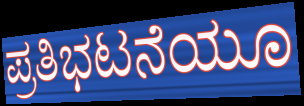
ಪ್ರತಿಭಟನೆಯೂ